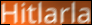
Hitlarla